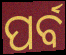
ପର୍ବ